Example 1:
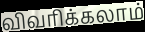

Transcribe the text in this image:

விவரிக்கலாம்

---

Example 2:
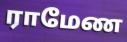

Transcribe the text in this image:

ராமேண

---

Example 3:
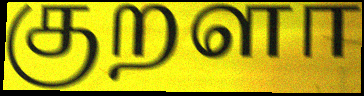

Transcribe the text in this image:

குறளா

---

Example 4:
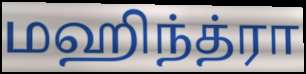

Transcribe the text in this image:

மஹிந்த்ரா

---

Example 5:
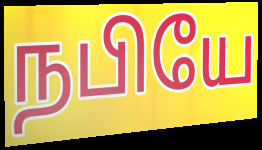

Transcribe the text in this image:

நபியே